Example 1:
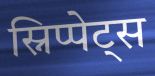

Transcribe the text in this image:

स्निप्पेट्स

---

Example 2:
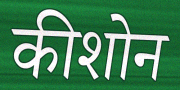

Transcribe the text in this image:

कीशोन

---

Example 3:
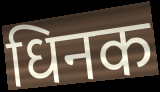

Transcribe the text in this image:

धिनक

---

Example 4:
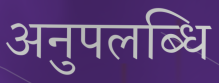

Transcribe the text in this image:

अनुपलब्धि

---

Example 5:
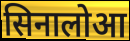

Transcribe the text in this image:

सिनालोआ